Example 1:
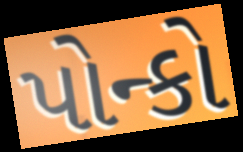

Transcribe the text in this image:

પોન્કો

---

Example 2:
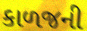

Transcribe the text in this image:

કાળજની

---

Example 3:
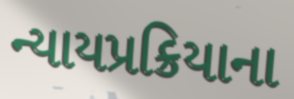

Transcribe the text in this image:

ન્યાયપ્રક્રિયાના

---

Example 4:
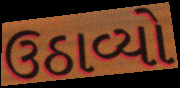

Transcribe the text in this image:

ઉઠાવ્યો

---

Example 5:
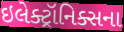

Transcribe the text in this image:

ઇલેક્ટ્રૉનિક્સના